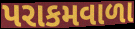
પરાકમવાળા